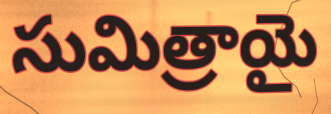
సుమిత్రాయై